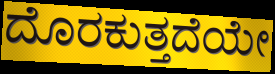
ದೊರಕುತ್ತದೆಯೇ